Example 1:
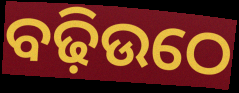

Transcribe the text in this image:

ବଢ଼ିଉଠେ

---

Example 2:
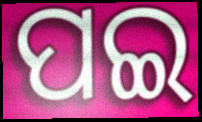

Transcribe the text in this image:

ପଇ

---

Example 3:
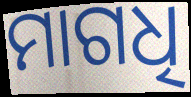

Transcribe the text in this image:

ମାଗଧି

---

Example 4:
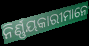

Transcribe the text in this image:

ନିର୍ଣ୍ଣୟକାରୀମାନେ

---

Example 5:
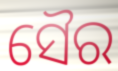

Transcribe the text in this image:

ସୈର